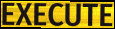
EXECUTE